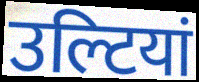
उल्‍टियां